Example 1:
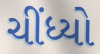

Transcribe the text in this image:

ચીંધ્યો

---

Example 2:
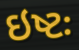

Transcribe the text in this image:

ઇષ્ટઃ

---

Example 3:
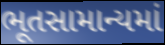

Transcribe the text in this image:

ભૂતસામાન્યમાં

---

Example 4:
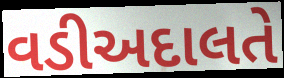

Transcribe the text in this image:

વડીઅદાલતે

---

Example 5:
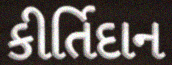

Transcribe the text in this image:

કીર્તિદાન